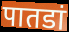
पातडां